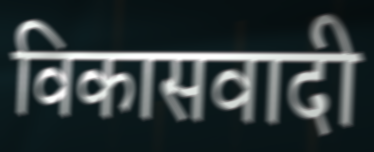
विकासवादी